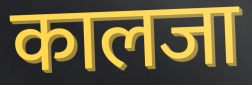
कालजा